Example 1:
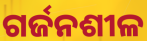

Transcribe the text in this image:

ଗର୍ଜନଶୀଳ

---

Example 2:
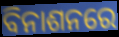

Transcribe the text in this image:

ବିନାଶନରେ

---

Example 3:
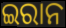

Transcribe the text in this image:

ଇରାନ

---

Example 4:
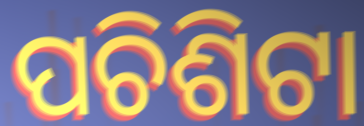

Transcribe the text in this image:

ପଚିଶିଟା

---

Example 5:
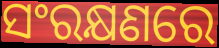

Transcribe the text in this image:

ସଂରକ୍ଷଣରେ